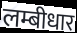
लम्बीधार